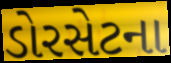
ડોરસેટના